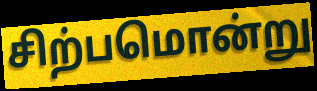
சிற்பமொன்று